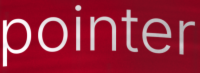
pointer